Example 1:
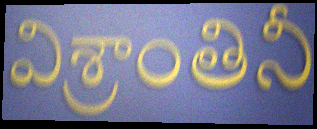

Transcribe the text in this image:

విశ్రాంతినీ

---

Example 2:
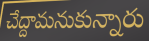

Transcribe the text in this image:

చేద్దామనుకున్నారు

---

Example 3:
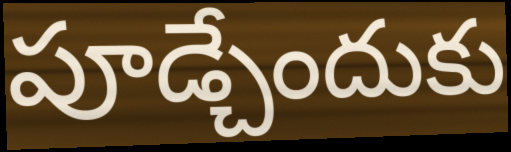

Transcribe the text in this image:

పూడ్చేందుకు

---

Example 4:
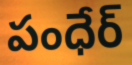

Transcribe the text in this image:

పంధేర్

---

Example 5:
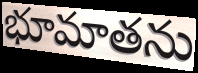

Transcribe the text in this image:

భూమాతను